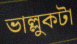
ভাল্লুকটা